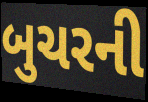
બુચરની